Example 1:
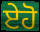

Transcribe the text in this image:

ਏਹੋ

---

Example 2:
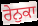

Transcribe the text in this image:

ਰੇਨੁਕਾ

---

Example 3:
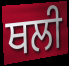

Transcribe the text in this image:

ਥਲੀ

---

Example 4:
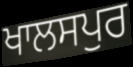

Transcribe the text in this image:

ਖਾਲਸਪੁਰ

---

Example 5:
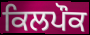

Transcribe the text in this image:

ਕਿਲਪੌਕ